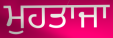
ਮੁਹਤਾਜਾ